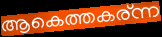
ആകെത്തകര്ന്ന